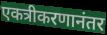
एकत्रीकरणानंतर